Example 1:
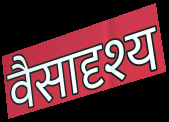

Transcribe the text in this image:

वैसादृश्य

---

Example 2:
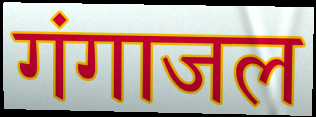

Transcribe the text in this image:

गंगाजल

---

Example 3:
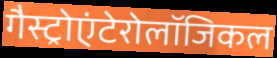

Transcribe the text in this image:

गैस्ट्रोएंटेरोलॉजिकल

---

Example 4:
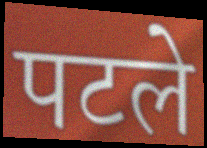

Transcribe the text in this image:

पटले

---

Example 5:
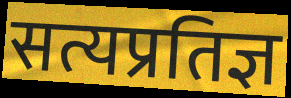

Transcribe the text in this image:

सत्यप्रतिज्ञ